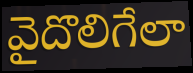
వైదొలిగేలా